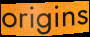
origins